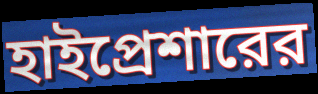
হাইপ্রেশারের